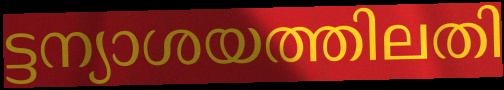
ട്ടന്യാശയത്തിലതി